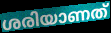
ശരിയാണത്